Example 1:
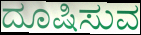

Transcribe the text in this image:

ದೂಷಿಸುವ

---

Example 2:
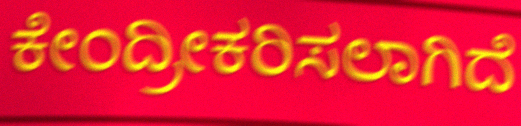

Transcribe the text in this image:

ಕೇಂದ್ರೀಕರಿಸಲಾಗಿದೆ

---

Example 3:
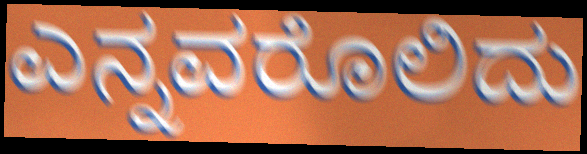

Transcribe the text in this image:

ಎನ್ನವರೊಲಿದು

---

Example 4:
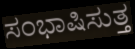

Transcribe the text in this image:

ಸಂಭಾಷಿಸುತ್ತ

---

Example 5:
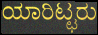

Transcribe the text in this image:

ಯಾರಿಟ್ಟರು